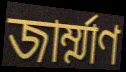
জার্ম্মাণ